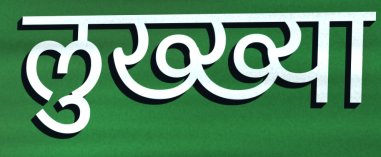
लुख्ख्या